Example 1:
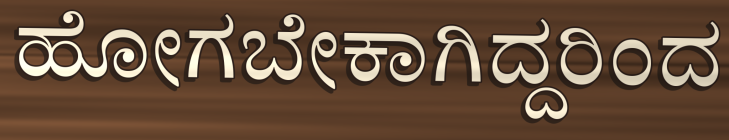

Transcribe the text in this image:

ಹೋಗಬೇಕಾಗಿದ್ದರಿಂದ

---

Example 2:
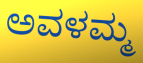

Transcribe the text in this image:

ಅವಳಮ್ಮ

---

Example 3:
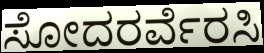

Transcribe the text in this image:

ಸೋದರರ್ವೆರಸಿ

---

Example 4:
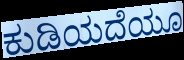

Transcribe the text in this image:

ಕುಡಿಯದೆಯೂ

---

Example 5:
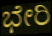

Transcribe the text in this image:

ಭೇರಿ